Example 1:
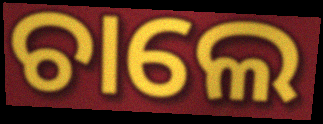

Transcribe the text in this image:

ଚାଲେ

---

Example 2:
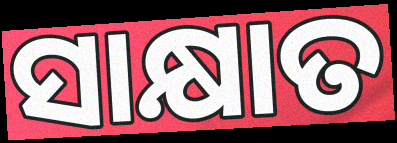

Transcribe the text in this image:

ସାକ୍ଷାତ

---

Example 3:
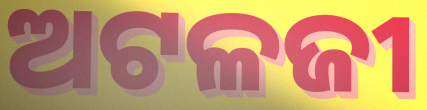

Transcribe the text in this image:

ଅଟଳଜୀ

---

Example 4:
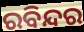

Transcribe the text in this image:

ରବିନ୍ଦର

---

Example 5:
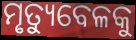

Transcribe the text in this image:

ମୃତ୍ୟୁବେଳକୁ